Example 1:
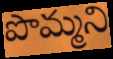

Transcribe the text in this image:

పొమ్మని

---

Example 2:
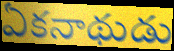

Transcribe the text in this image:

ఏకనాథుడు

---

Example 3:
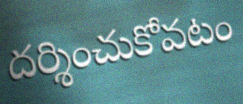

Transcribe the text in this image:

దర్శించుకోవటం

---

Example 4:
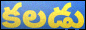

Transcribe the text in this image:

కలడు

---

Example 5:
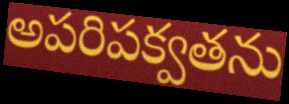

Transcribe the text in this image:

అపరిపక్వతను